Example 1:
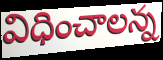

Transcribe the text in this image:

విధించాలన్న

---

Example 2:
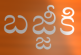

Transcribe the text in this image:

బజ్జీకి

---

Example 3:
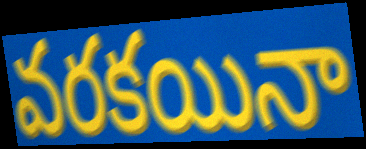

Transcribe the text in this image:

వరకయినా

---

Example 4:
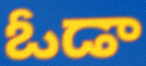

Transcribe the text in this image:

ఓడా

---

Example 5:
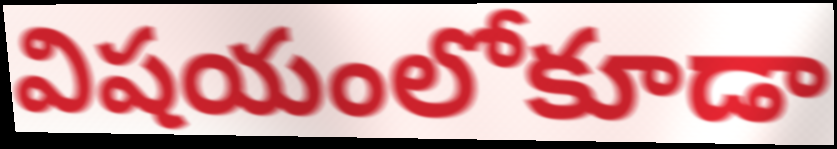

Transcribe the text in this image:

విషయంలోకూడా